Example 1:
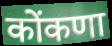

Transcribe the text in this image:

कोंकणा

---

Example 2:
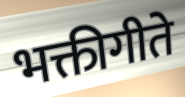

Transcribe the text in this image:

भक्तीगीते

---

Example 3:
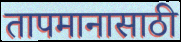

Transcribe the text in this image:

तापमानासाठी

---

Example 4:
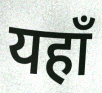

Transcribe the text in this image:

यहाँ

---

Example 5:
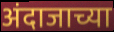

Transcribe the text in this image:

अंदाजाच्या